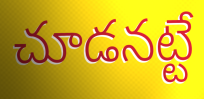
చూడనట్టే